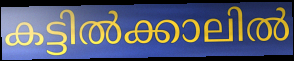
കട്ടിൽക്കാലിൽ